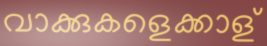
വാക്കുകളെക്കാള്